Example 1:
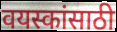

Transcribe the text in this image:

वयस्कांसाठी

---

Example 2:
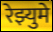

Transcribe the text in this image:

रेझ्युमे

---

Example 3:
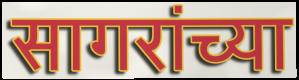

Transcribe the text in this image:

सागरांच्या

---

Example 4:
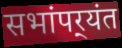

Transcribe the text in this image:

सभांपर्यंत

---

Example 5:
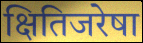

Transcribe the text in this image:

क्षितिजरेषा